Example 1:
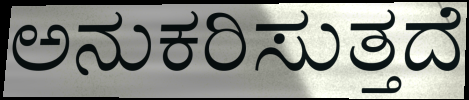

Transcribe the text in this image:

ಅನುಕರಿಸುತ್ತದೆ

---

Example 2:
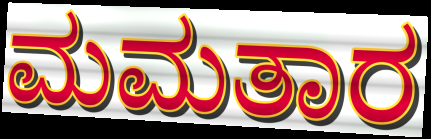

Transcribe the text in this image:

ಮಮತಾರ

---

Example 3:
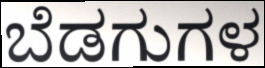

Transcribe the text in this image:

ಬೆಡಗುಗಳ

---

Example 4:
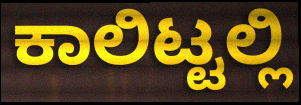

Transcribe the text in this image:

ಕಾಲಿಟ್ಟಲ್ಲಿ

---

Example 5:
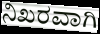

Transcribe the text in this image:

ನಿಖರವಾಗಿ